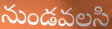
నుండవలసి